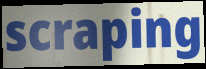
scraping